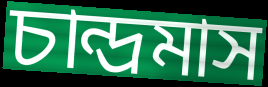
চান্দ্রমাস